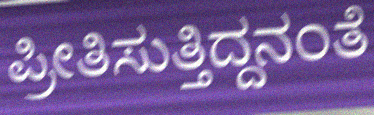
ಪ್ರೀತಿಸುತ್ತಿದ್ದನಂತೆ